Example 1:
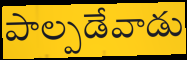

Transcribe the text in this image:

పాల్పడేవాడు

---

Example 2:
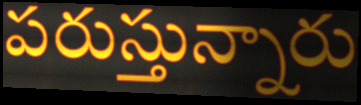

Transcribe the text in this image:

పరుస్తున్నారు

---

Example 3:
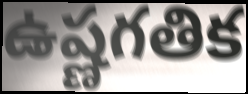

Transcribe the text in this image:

ఉష్ణగతిక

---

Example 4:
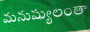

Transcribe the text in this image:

మనుష్యులంతా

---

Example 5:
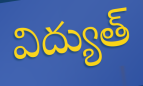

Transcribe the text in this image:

విద్యుత్